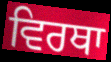
ਵਿਰਥਾ